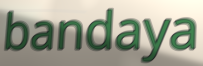
bandaya